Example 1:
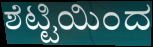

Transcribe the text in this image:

ಶೆಟ್ಟಿಯಿಂದ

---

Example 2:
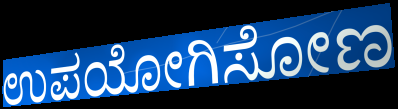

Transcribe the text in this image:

ಉಪಯೋಗಿಸೋಣ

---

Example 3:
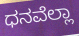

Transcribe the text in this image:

ಧನವೆಲ್ಲಾ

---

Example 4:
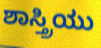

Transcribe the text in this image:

ಶಾಸ್ತ್ರಿಯು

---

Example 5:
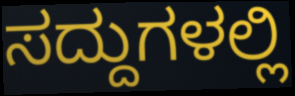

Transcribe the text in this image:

ಸದ್ದುಗಳಲ್ಲಿ